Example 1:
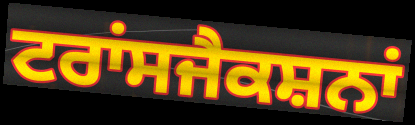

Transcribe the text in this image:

ਟਰਾਂਸਜੈਕਸ਼ਨਾਂ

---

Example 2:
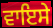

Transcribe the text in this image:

ਵਾਇਸੇ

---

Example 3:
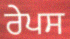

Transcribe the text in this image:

ਰੇਪਸ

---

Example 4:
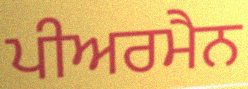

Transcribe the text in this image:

ਪੀਅਰਮੈਨ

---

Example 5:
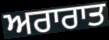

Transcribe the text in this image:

ਅਰਾਰਾਤ